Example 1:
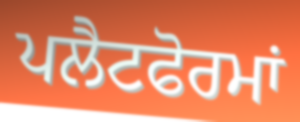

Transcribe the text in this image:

ਪਲੈਟਫੋਰਮਾਂ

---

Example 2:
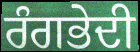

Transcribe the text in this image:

ਰੰਗਭੇਦੀ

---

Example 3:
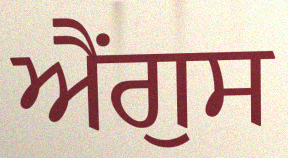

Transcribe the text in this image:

ਐਂਗੁਸ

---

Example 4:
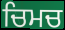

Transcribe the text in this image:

ਚਿਮਚ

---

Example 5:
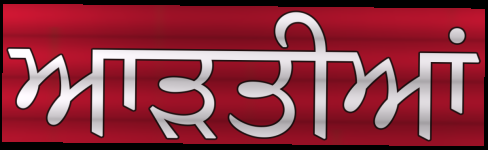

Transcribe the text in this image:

ਆੜਤੀਆਂ